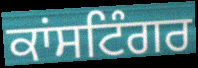
ਕਾਂਸਟਿੰਗਰ